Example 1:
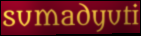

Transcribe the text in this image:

sumadyuti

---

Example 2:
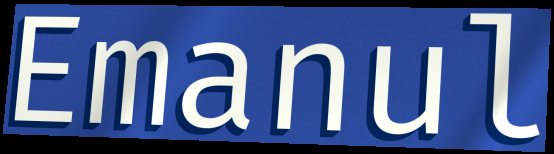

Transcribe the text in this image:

Emanul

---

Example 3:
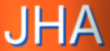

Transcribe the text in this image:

JHA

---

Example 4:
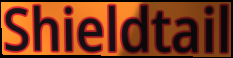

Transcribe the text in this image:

Shieldtail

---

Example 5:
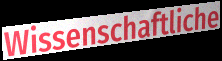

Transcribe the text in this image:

Wissenschaftliche